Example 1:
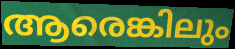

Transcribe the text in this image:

ആരെങ്കിലും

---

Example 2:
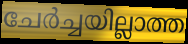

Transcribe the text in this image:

ചേർച്ചയില്ലാത്ത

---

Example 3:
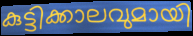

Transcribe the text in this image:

കുട്ടിക്കാലവുമായി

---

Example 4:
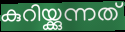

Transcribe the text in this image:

കുറിയ്ക്കുന്നത്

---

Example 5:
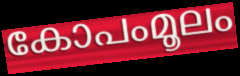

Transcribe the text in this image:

കോപംമൂലം